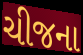
ચીજના